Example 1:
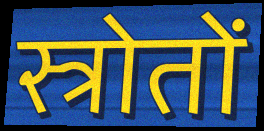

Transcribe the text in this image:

स्त्रोतों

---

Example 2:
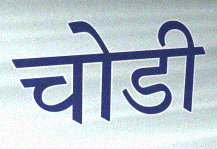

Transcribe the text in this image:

चोडी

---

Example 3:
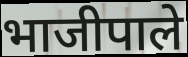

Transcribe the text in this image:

भाजीपाले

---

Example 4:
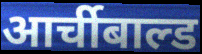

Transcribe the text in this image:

आर्चीबाल्ड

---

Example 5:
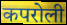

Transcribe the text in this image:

कपरोली